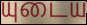
யுடைய